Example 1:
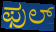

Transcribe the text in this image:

ಫುಲ್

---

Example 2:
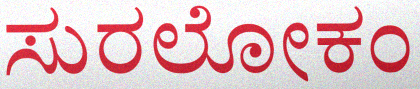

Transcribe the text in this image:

ಸುರಲೋಕಂ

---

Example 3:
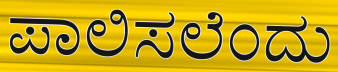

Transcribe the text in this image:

ಪಾಲಿಸಲೆಂದು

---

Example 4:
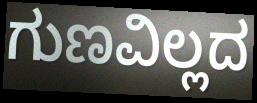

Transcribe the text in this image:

ಗುಣವಿಲ್ಲದ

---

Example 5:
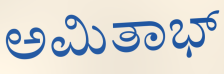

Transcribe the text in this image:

ಅಮಿತಾಭ್